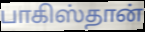
பாகிஸ்தான்